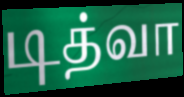
டித்வா